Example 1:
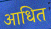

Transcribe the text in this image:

आधित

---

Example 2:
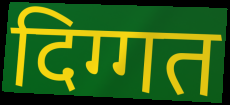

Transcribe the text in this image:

दिग्गत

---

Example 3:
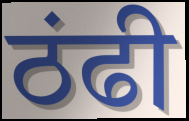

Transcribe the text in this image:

ठंढी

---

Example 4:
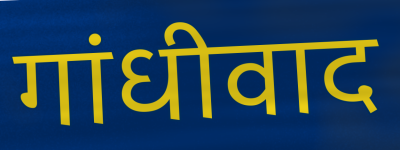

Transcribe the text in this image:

गांधीवाद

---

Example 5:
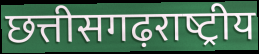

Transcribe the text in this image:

छत्तीसगढ़राष्ट्रीय